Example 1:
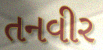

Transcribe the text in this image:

તનવીર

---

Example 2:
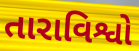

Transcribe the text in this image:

તારાવિશ્વો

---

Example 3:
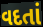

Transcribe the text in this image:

વદતાં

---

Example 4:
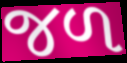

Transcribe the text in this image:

જળ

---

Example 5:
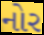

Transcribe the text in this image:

નોર